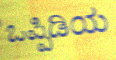
ಒಪ್ಪಿಡಿಯ